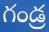
గండ్ర